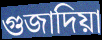
গুজাদিয়া